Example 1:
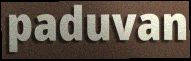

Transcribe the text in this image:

paduvan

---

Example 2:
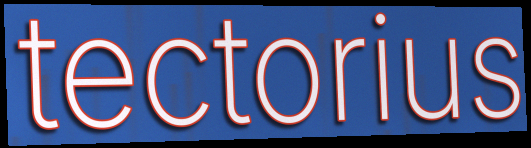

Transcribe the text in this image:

tectorius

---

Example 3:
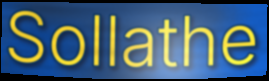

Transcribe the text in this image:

Sollathe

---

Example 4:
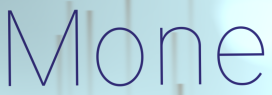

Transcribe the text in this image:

Mone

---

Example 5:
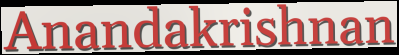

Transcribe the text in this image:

Anandakrishnan